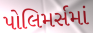
પોલિમર્સમાં